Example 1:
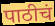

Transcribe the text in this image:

पाठीचं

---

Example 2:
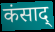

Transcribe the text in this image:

कंसाद्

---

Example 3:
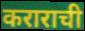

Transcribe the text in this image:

कराराची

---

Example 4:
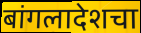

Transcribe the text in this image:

बांगलादेशचा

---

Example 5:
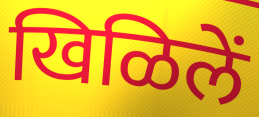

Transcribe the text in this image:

खिळिलें